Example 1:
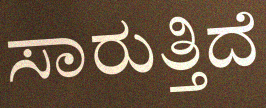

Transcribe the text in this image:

ಸಾರುತ್ತಿದೆ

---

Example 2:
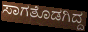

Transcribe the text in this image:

ಸಾಗತೊಡಗಿದ್ದ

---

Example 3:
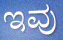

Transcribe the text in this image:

ಇವು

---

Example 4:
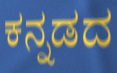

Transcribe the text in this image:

ಕನ್ನಡದ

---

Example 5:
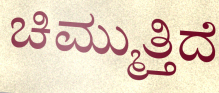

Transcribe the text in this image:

ಚಿಮ್ಮುತ್ತಿದೆ